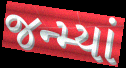
જન્મ્યાં